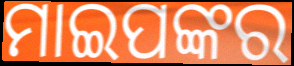
ମାଇପଙ୍କର